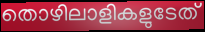
തൊഴിലാളികളുടേത്